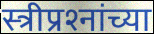
स्त्रीप्रश्नांच्या